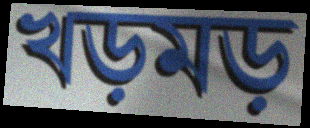
খড়মড়